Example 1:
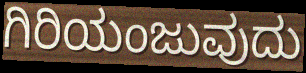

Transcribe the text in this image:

ಗಿರಿಯಂಜುವುದು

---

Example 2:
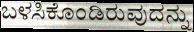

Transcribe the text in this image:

ಬಳಸಿಕೊಂಡಿರುವುದನ್ನು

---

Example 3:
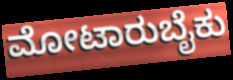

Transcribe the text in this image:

ಮೋಟಾರುಬೈಕು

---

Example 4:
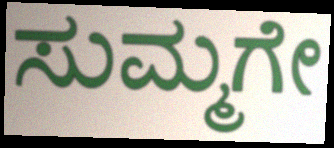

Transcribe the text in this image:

ಸುಮ್ಮಗೇ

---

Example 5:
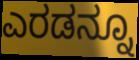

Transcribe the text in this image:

ಎರಡನ್ನೂ